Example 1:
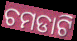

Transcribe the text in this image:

ଚମଡାଟି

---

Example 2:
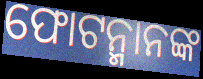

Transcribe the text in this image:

ଫୋଟନ୍ମାନଙ୍କ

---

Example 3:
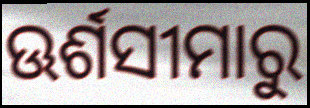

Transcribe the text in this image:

ଊର୍ଶସୀମାରୁ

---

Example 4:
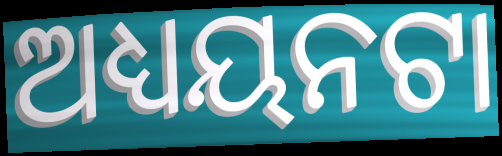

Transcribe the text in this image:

ଅଧ୍ୟୟନଟା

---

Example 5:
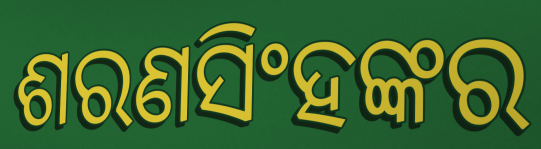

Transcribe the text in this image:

ଶରଣସିଂହଙ୍କର